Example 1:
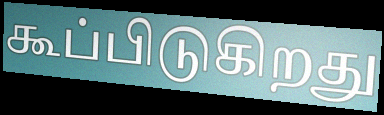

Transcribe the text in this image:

கூப்பிடுகிறது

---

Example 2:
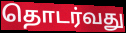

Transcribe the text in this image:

தொடர்வது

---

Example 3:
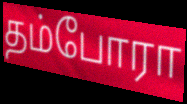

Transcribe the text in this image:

தம்போரா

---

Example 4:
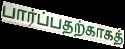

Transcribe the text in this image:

பார்ப்பதற்காகத்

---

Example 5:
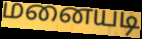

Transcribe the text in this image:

மனையடி